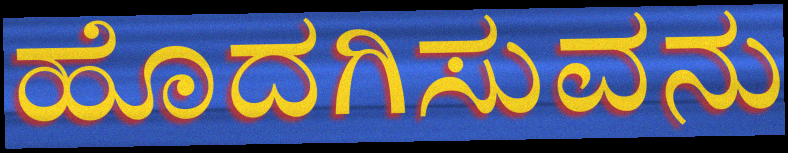
ಹೊದಗಿಸುವನು